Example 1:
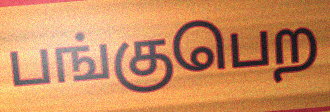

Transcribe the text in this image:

பங்குபெற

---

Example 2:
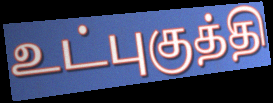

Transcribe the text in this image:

உட்புகுத்தி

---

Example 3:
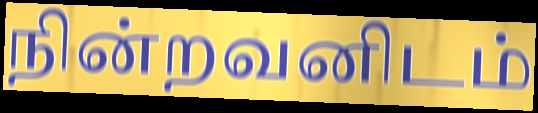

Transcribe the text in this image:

நின்றவனிடம்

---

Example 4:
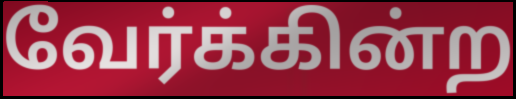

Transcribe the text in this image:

வேர்க்கின்ற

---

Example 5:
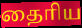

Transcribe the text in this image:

தைரிய